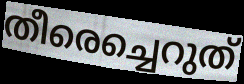
തീരെച്ചെറുത്